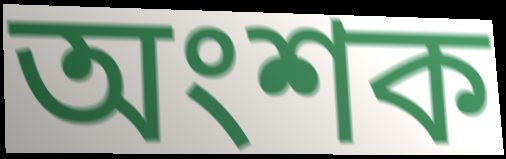
অংশক